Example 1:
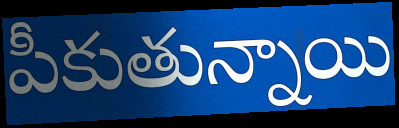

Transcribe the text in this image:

పీకుతున్నాయి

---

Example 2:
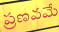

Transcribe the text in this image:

ప్రణవమే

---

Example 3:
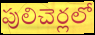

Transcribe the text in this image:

పులిచెర్లలో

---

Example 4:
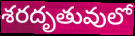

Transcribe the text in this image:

శరదృతువులో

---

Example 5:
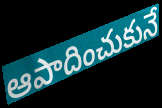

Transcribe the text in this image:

ఆపాదించుకునే